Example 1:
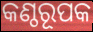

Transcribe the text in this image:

କଣ୍ଠରୂପକ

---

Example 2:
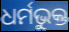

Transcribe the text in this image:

ଧର୍ମଭୁକ୍ତ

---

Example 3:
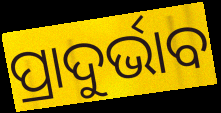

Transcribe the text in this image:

ପ୍ରାଦୁର୍ଭାବ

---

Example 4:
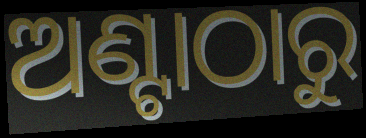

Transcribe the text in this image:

ଅଣ୍ଟାଠାରୁ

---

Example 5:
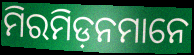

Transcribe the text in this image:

ମିରମିଡ଼ନମାନେ